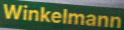
Winkelmann